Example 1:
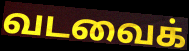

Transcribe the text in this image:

வடவைக்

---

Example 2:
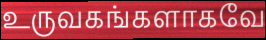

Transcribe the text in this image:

உருவகங்களாகவே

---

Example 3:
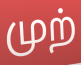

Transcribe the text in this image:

முற்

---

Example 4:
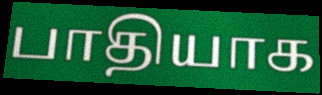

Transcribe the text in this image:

பாதியாக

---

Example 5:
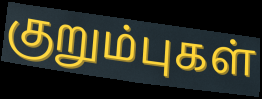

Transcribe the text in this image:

குறும்புகள்